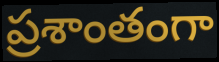
ప్రశాంతంగా